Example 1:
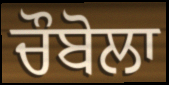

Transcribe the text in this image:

ਚੌਬੋਲਾ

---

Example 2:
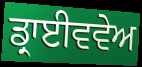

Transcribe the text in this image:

ਡ੍ਰਾਈਵਵੇਅ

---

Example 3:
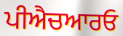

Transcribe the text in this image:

ਪੀਐਚਆਰਓ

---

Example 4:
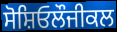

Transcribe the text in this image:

ਸੋਸ਼ਿਓਲੌਜੀਕਲ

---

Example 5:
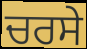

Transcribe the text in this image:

ਚਰਸੇ